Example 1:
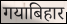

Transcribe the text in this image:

गयाबिहार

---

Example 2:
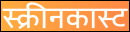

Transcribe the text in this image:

स्क्रीनकास्ट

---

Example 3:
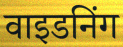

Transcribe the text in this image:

वाइडनिंग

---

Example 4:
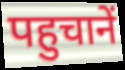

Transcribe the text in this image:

पहुचानें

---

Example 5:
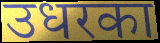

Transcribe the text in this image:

उधरका